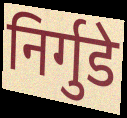
निर्गुडे